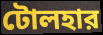
টোলহার